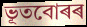
ভূতবোৰৰ